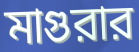
মাগুরার